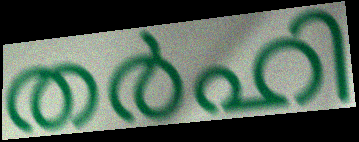
തർഹി